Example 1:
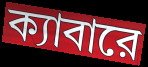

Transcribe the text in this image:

ক্যাবারে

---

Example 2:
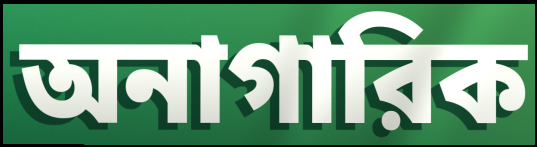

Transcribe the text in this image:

অনাগারিক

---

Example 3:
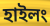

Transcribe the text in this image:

হাইলং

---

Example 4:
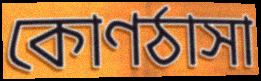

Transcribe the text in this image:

কোণঠাসা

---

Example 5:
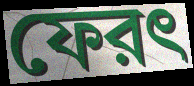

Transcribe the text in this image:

ফেরৎ